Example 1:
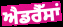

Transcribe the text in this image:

ਐਡਰੈੱਸਾਂ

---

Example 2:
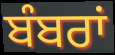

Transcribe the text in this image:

ਬੰਬਰਾਂ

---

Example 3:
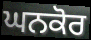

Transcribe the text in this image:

ਘਨਕੋਰ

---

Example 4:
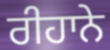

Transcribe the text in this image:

ਰੀਹਾਨੇ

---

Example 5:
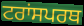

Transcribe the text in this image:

ਟਰਾਂਸਪਰਥ